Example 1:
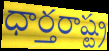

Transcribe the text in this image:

ధార్తరాష్ట్ర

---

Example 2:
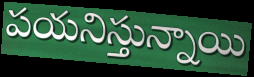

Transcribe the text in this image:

పయనిస్తున్నాయి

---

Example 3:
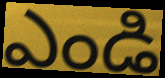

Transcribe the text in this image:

ఎండి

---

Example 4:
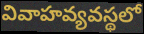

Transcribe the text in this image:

వివాహవ్యవస్థలో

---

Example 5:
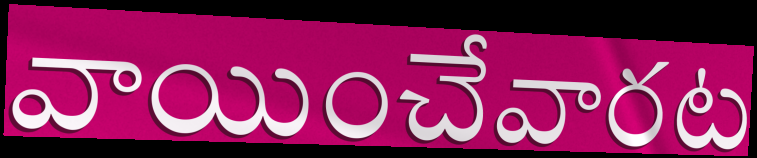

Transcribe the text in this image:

వాయించేవారట